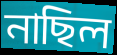
নাছিল